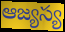
ఆజ్యస్య